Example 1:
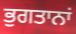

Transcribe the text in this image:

ਭੁਗਤਾਨਾਂ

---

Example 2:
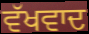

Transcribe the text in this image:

ਵੱਖਵਾਦ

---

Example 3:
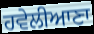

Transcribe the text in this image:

ਹਵੇਲੀਆਣਾ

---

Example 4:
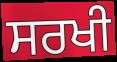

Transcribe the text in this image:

ਸਰਖੀ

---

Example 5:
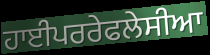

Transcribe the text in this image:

ਹਾਈਪਰਰੇਫਲੇਸੀਆ